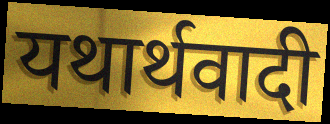
यथार्थवादी